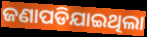
ଜଣାପଡିଯାଇଥିଲା